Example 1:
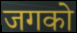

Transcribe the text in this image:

जगको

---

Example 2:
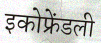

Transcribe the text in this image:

इकोफ्रेंडली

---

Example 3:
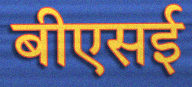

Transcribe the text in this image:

बीएसई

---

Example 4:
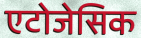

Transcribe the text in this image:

एटोजेसिक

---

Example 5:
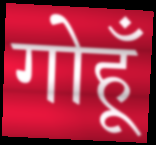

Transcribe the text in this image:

गोहूँ